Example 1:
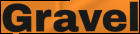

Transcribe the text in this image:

Gravel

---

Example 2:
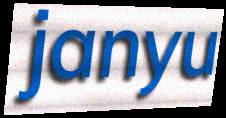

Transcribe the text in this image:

janyu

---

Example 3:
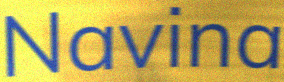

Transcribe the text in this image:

Navina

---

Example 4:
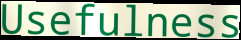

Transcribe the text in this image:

Usefulness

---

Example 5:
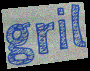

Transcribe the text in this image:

gril